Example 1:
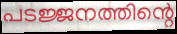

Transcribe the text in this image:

പടജ്ജനത്തിന്റെ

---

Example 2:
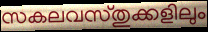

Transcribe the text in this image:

സകലവസ്തുക്കളിലും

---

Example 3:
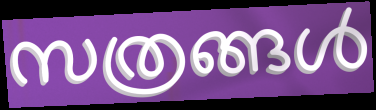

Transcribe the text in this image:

സത്രങ്ങൾ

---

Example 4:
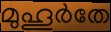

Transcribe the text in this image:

മുഹൂർതേ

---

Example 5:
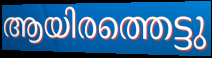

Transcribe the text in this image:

ആയിരത്തെട്ടു